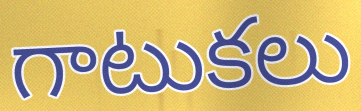
గాటుకలు